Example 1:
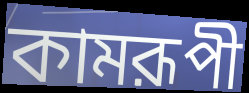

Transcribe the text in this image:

কামরূপী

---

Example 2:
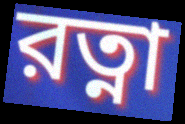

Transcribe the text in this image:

রত্না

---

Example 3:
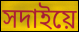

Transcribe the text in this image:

সদাইয়ে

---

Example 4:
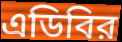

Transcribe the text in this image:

এডিবির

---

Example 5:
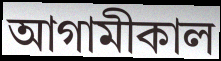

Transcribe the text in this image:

আগামীকাল